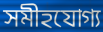
সমীহযোগ্য